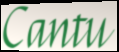
Cantu